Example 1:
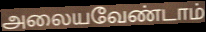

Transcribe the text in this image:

அலையவேண்டாம்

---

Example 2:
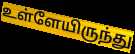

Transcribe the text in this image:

உள்ளேயிருந்து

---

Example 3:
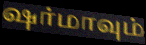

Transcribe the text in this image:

ஷர்மாவும்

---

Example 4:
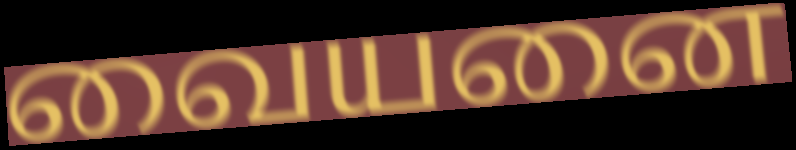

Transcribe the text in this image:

வையனை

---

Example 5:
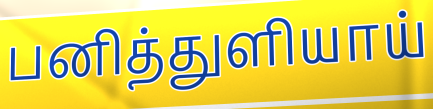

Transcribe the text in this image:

பனித்துளியாய்